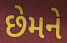
છેમને